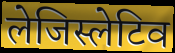
लेजिस्लेटिव